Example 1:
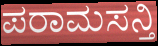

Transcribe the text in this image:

ಪರಾಮಸನ್ತಿ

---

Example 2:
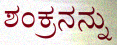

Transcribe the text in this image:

ಶಂಕ್ರನನ್ನು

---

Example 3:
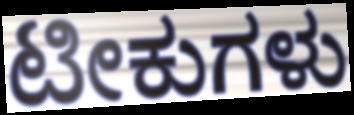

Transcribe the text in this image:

ಟೀಕುಗಳು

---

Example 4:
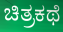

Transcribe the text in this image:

ಚಿತ್ರಕಥೆ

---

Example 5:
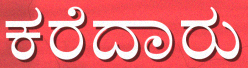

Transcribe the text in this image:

ಕರೆದಾರು